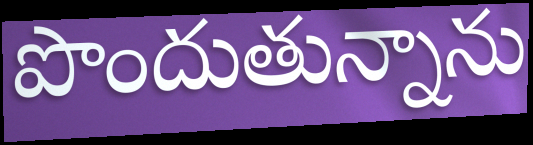
పొందుతున్నాను